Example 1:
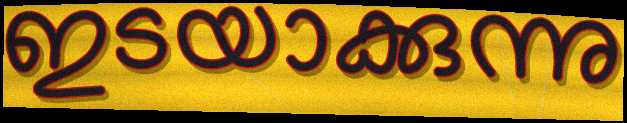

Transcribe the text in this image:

ഇടയാക്കുന്നു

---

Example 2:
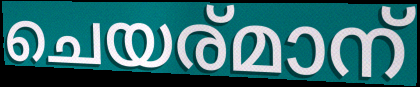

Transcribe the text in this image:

ചെയര്മാന്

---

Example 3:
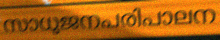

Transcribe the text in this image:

സാധുജനപരിപാലന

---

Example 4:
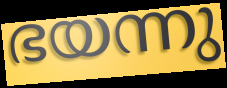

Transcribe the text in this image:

ഭയന്നു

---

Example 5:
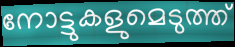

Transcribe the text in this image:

നോട്ടുകളുമെടുത്ത്